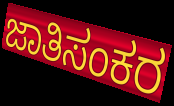
ಜಾತಿಸಂಕರ